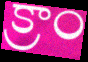
క్రాం